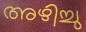
അഴിച്ചു